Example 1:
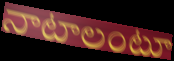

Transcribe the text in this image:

నాటాలంటూ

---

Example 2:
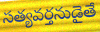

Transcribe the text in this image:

సత్యవర్తనుడైతే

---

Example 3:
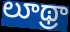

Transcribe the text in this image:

లూథ్రా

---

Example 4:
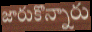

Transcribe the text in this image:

జారుకొన్నారు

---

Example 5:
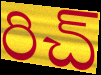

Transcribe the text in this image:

రిచ్